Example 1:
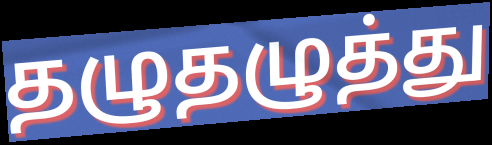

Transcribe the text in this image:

தழுதழுத்து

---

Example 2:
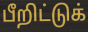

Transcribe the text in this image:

பீறிட்டுக்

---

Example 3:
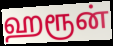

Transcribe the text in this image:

ஹரூன்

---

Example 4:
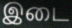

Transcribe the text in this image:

இடை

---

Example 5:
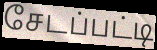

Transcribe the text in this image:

சேடப்பட்டி